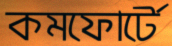
কমফোর্টে